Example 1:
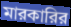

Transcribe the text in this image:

মারকারির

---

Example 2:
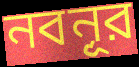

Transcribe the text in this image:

নবনূর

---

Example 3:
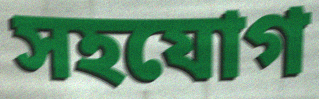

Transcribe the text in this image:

সহযোগ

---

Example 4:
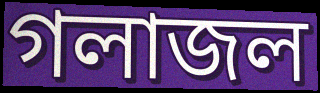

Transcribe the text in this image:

গলাজল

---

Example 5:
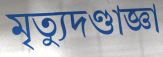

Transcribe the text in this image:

মৃত্যুদণ্ডাজ্ঞা